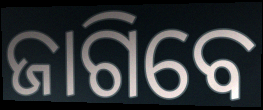
ଜାଗିବେ